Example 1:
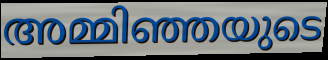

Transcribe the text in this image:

അമ്മിഞ്ഞയുടെ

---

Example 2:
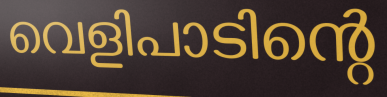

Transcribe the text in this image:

വെളിപാടിന്റെ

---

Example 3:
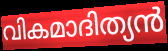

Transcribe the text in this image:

വികമാദിത്യൻ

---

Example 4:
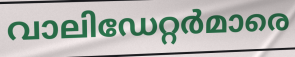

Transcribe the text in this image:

വാലിഡേറ്റർമാരെ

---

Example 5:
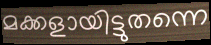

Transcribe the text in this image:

മക്കളായിട്ടുതന്നെ